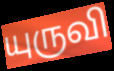
யுருவி